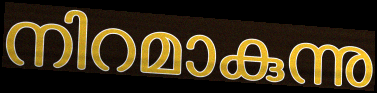
നിറമാകുന്നു